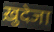
ख़ुदेजा